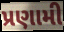
પ્રણામી